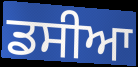
ਡਸੀਆ